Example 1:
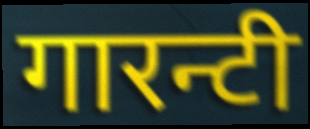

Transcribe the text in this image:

गारन्टी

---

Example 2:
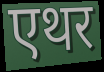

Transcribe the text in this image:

एथर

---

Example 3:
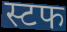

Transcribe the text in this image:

स्टफ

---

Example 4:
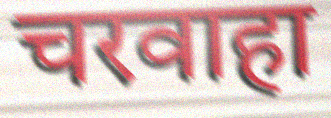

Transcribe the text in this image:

चरवाहा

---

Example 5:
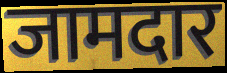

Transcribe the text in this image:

जामदार